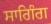
ਸਾਗਿੰਗ